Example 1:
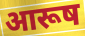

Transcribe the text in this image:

आरूष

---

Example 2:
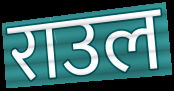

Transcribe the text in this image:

राउल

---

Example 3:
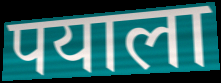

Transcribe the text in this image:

पयाला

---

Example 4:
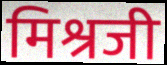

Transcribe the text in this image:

मिश्रजी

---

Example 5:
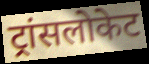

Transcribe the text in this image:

ट्रांसलोकेट